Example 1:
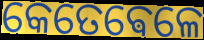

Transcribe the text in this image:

କେତେଵେଳେ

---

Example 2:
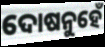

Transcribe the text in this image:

ଦୋଷନୁହେଁ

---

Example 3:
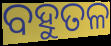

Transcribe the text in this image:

ବହୁତଳ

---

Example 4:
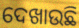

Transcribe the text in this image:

ଦେଖାଉଛି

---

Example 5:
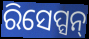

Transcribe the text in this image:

ରିସେପ୍ସନ୍